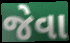
જેવા